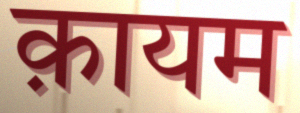
क़ायम